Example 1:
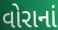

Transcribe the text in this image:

વોરાનાં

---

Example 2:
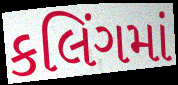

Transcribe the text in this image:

કલિંગમાં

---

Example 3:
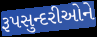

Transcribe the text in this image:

રૂપસુન્દરીઓને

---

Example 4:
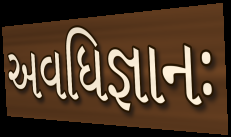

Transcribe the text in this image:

અવધિજ્ઞાનઃ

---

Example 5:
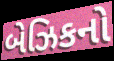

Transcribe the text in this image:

બેઝિકનો